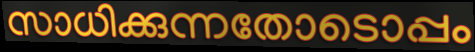
സാധിക്കുന്നതോടൊപ്പം